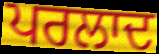
ਪਰਲਾਦ